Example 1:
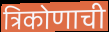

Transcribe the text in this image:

त्रिकोणाची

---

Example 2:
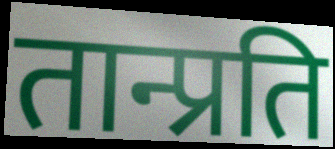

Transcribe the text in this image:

तान्प्रति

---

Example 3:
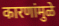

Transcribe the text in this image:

कारणांमुळे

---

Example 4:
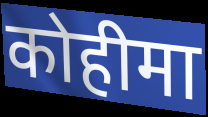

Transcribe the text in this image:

कोहीमा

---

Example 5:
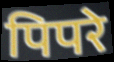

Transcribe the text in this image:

पिपरे